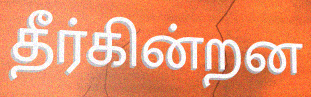
தீர்கின்றன